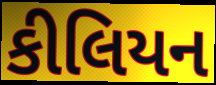
કીલિયન